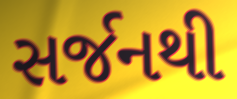
સર્જનથી